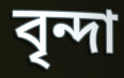
বৃন্দা